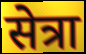
सेत्रा